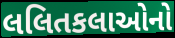
લલિતકલાઓનો